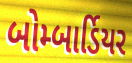
બોમ્બાર્ડિયર